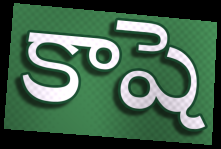
కాషె